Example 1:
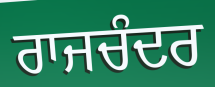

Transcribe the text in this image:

ਰਾਜਚੰਦਰ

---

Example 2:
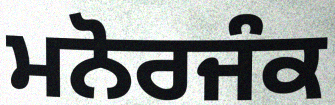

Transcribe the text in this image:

ਮਨੋਰਜੰਕ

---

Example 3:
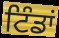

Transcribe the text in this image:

ਟਿੰਡਾਂ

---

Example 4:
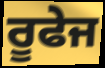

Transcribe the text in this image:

ਰੂਫੇਜ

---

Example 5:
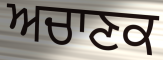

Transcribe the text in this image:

ਅਚਾਣਕ